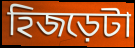
হিজড়েটা